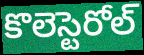
కొలెస్టెరోల్